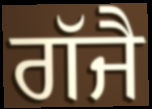
ਗੱਜੈ